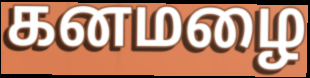
கனமழை